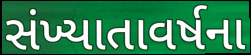
સંખ્યાતાવર્ષના